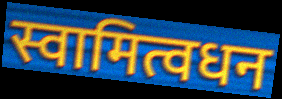
स्वामित्वधन